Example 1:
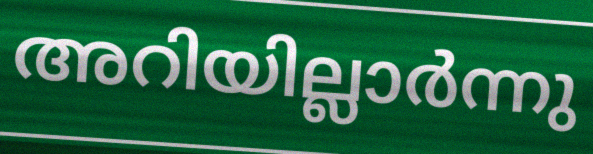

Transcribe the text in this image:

അറിയില്ലാർന്നു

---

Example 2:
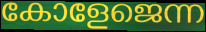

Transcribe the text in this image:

കോളേജെന്ന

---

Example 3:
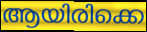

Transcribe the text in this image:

ആയിരിക്കെ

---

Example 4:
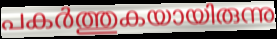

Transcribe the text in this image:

പകർത്തുകയായിരുന്നു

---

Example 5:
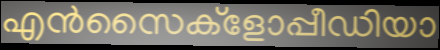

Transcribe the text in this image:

എൻസൈക്ളോപ്പീഡിയാ